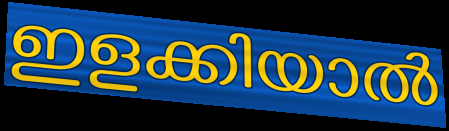
ഇളക്കിയാൽ